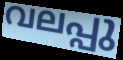
വലപ്പു